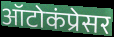
ऑटोकंप्रेसर